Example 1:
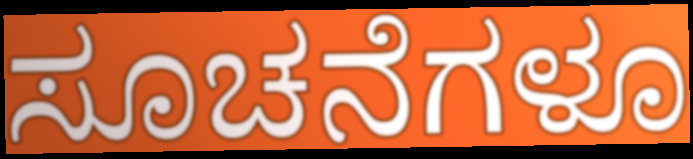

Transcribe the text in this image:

ಸೂಚನೆಗಳೂ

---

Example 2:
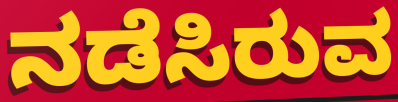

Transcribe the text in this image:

ನಡೆಸಿರುವ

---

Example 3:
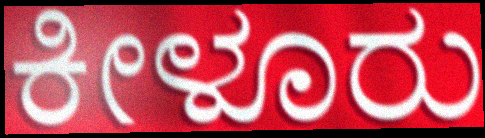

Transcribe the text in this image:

ಕೀಳೂರು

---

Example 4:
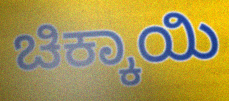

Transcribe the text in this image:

ಚಿಕ್ಕಾಯಿ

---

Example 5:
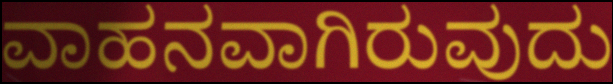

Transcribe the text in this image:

ವಾಹನವಾಗಿರುವುದು